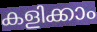
കളിക്കാം